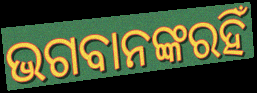
ଭଗବାନଙ୍କରହିଁ